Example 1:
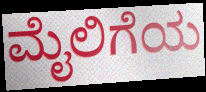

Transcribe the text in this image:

ಮೈಲಿಗೆಯ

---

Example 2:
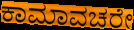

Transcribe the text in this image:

ಕಾಮಾವಚರೇ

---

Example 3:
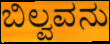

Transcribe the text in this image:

ಬಿಲ್ವವನು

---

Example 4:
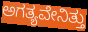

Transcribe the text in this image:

ಅಗತ್ಯವೇನಿತ್ತು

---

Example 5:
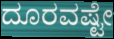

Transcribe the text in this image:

ದೂರವಷ್ಟೇ